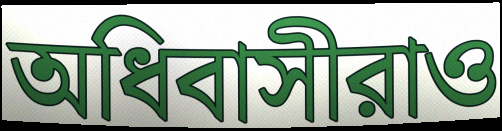
অধিবাসীরাও